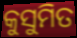
କୁସୁମିତ